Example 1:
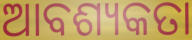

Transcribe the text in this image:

ଆବଶ୍ୟକତା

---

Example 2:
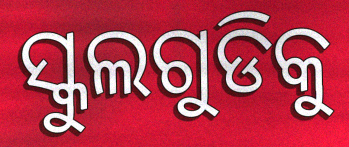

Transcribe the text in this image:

ସ୍କୁଲଗୁଡିକୁ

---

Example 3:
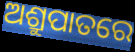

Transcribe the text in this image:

ଅଶ୍ରୁପାତରେ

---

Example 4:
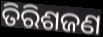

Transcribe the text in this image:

ତିରିଶଜଣ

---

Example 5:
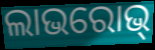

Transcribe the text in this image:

ଲାଭରୋଭ୍